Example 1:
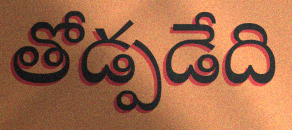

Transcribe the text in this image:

తోడ్పడేది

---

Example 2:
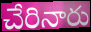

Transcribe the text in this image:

చేరినారు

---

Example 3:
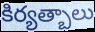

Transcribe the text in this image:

కిర్యత్బాలు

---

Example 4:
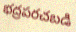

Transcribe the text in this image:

భద్రపరచబడి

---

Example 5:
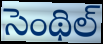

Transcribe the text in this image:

సెంథిల్